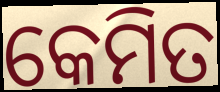
କେମିତ